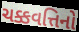
ચક્કવત્તિનો